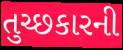
તુચ્છકારની